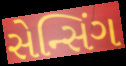
સેન્સિંગ